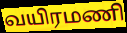
வயிரமணி